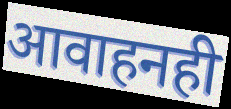
आवाहनही